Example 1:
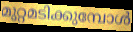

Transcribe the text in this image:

മുറ്റമടിക്കുമ്പോൾ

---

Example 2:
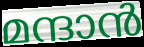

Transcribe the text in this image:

മന്ദാൻ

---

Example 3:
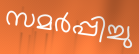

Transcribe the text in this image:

സമർപ്പിച്ചു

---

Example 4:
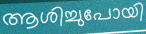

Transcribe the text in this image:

ആശിച്ചുപോയി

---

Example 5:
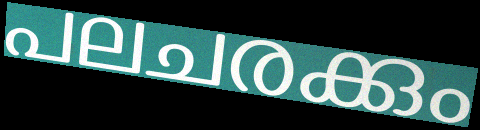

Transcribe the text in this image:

പലചരക്കും